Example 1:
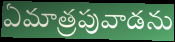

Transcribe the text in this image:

ఏమాత్రపువాడను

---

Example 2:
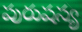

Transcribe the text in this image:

పురుషస్య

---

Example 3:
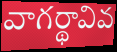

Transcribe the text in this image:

వాగర్థావివ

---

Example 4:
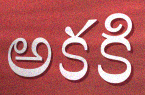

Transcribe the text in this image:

అకకి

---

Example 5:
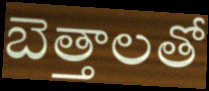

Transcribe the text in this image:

బెత్తాలతో